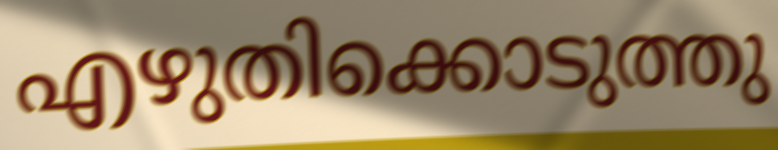
എഴുതിക്കൊടുത്തു